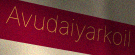
Avudaiyarkoil